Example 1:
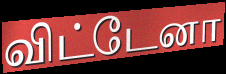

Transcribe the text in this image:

விட்டேனா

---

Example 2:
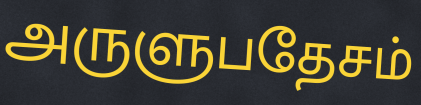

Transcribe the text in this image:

அருளுபதேசம்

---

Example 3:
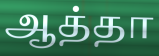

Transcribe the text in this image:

ஆத்தா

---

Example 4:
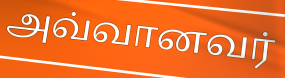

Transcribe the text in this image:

அவ்வானவர்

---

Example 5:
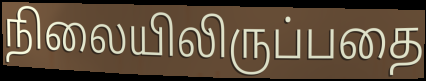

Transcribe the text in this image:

நிலையிலிருப்பதை